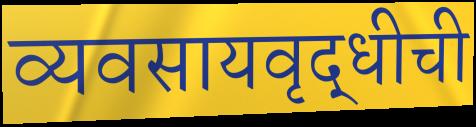
व्यवसायवृद्धीची